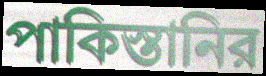
পাকিস্তানির